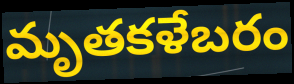
మృతకళేబరం